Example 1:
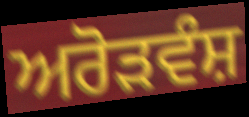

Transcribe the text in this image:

ਅਰੋੜਵੰਸ਼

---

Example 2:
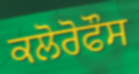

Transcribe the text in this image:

ਕਲੋਰੋਫੌਸ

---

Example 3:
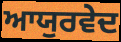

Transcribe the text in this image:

ਆਯੁਰਵੇਦ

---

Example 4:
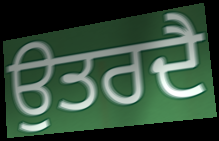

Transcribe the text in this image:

ਉਤਰਦੈ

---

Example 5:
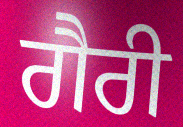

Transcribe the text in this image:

ਗੈਰੀ